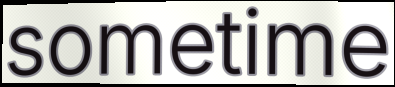
sometime